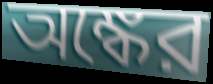
অঙ্কের